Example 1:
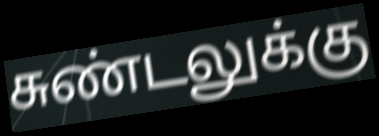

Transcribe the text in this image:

சுண்டலுக்கு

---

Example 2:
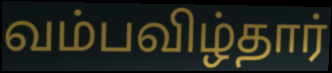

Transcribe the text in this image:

வம்பவிழ்தார்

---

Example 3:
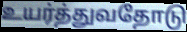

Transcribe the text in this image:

உயர்த்துவதோடு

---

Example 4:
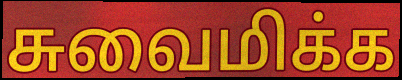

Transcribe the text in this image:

சுவைமிக்க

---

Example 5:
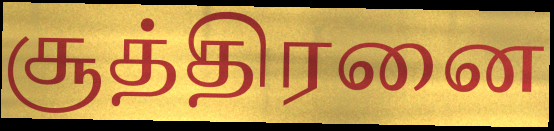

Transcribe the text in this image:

சூத்திரனை